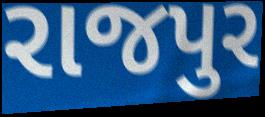
રાજપુર